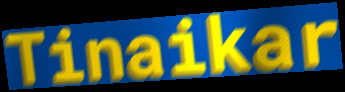
Tinaikar